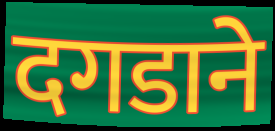
दगडाने